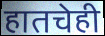
हातचेही